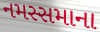
નમસ્સમાના